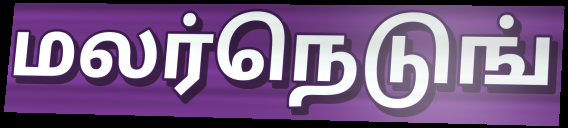
மலர்நெடுங்